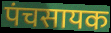
पंचसायक